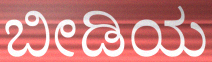
ಬೀಡಿಯ